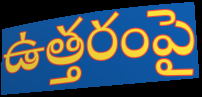
ఉత్తరంపై